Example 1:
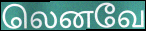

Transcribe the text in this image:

லெனவே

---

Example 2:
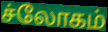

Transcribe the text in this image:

ச்லோகம்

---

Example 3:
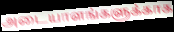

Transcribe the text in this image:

அடையாளங்களுக்காக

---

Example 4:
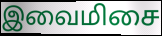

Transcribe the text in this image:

இவைமிசை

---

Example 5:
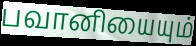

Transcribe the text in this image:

பவானியையும்